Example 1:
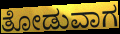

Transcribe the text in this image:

ತೋಡುವಾಗ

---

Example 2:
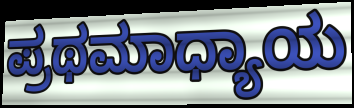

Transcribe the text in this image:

ಪ್ರಥಮಾಧ್ಯಾಯ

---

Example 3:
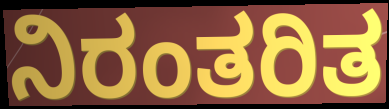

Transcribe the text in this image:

ನಿರಂತರಿತ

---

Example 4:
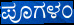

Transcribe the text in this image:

ಪೂಗಳಂ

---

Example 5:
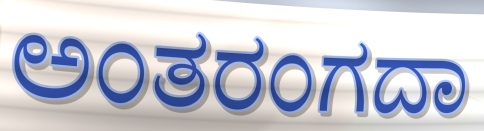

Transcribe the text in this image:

ಅಂತರಂಗದಾ